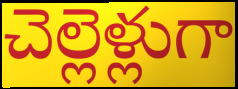
చెల్లెళ్లుగా